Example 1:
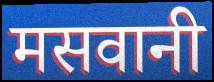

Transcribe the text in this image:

मसवानी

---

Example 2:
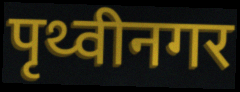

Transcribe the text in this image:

पृथ्वीनगर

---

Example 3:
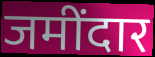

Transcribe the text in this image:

जमींदार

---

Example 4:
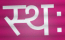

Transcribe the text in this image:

स्थः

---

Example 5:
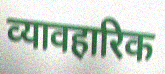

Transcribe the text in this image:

व्‍यावहारिक